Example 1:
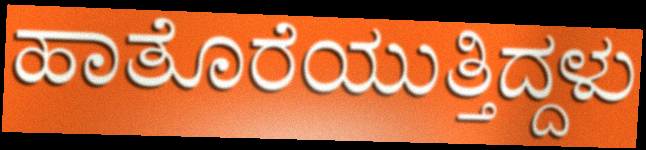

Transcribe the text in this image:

ಹಾತೊರೆಯುತ್ತಿದ್ದಳು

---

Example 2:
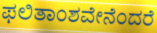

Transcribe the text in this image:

ಫಲಿತಾಂಶವೇನೆಂದರೆ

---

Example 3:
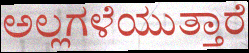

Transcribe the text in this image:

ಅಲ್ಲಗಳೆಯುತ್ತಾರೆ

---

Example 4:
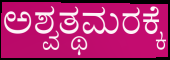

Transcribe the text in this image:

ಅಶ್ವತ್ಥಮರಕ್ಕೆ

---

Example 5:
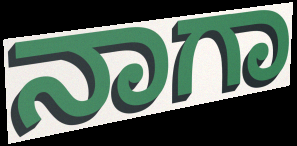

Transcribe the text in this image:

ನಾಗಾ